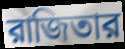
রাজিতার